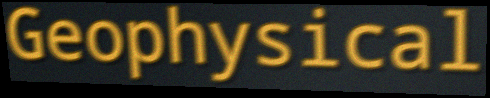
Geophysical